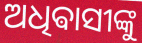
ଅଧିଵାସୀଙ୍କୁ